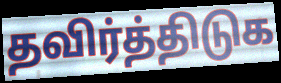
தவிர்த்திடுக